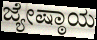
ಜ್ಯೇಷ್ಠಾಯ